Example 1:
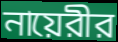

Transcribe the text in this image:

নায়েরীর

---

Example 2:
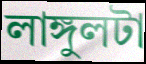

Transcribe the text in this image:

লাঙ্গুলটা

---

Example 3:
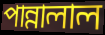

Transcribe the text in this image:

পান্নালাল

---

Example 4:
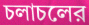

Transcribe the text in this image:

চলাচলের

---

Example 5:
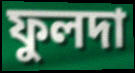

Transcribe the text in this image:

ফুলদা